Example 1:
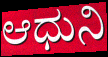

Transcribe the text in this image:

ಆಧುನಿ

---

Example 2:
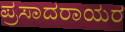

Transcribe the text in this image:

ಪ್ರಸಾದರಾಯರ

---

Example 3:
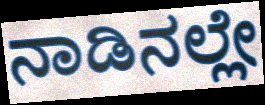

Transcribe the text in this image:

ನಾಡಿನಲ್ಲೇ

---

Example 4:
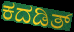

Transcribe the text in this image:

ಕದಡಿತ್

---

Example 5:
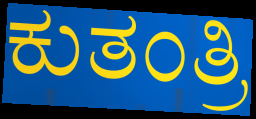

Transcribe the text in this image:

ಕುತಂತ್ರಿ